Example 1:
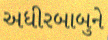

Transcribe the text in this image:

અધીરબાબુને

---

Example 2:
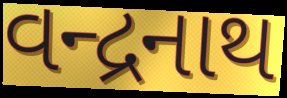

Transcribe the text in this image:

વન્દ્રનાથ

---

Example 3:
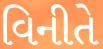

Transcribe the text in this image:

વિનીતે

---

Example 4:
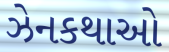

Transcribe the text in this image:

ઝેનકથાઓ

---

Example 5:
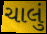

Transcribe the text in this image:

ચાલું